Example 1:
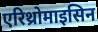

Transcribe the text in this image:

एरिथ्रोमाइसिन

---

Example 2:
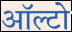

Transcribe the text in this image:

ऑल्टो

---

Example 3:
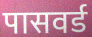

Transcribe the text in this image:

पासवर्ड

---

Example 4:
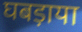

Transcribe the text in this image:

घबड़ाया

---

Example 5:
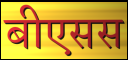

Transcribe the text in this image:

बीएसस